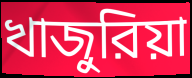
খাজুরিয়া